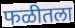
फळीतला